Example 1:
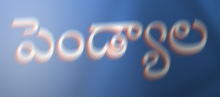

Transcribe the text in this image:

పెండ్యాల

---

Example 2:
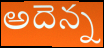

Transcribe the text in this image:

అదెన్న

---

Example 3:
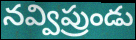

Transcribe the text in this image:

నవ్విప్రుండు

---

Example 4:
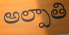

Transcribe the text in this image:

అల్పాతి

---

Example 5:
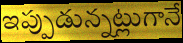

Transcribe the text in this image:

ఇప్పుడున్నట్లుగానే